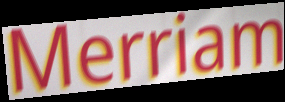
Merriam